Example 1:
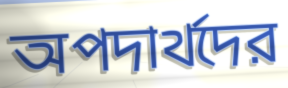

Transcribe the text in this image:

অপদার্থদের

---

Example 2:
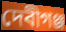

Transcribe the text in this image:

দেবীগঞ্জ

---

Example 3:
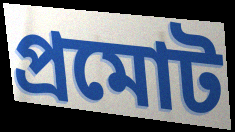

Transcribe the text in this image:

প্রমোট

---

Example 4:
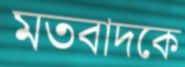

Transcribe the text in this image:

মতবাদকে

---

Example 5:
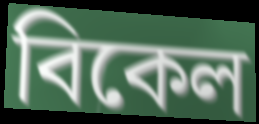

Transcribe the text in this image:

বিকেল